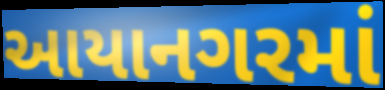
આયાનગરમાં